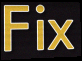
Fix